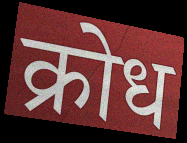
क्रोध